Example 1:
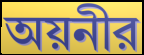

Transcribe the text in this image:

অয়নীর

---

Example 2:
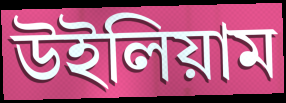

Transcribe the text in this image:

উইলিয়াম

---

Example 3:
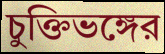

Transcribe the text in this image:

চুক্তিভঙ্গের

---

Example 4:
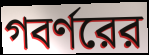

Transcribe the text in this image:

গবর্ণরের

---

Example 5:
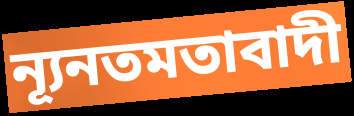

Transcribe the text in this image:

ন্যূনতমতাবাদী